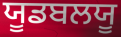
ਯੂਡਬਲਯੂ